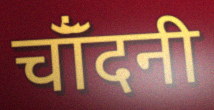
चॉँदनी